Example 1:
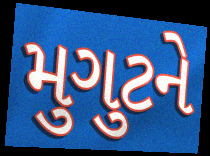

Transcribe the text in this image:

મુગુટને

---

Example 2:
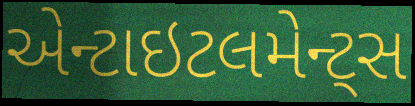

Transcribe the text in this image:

એન્ટાઇટલમેન્ટ્સ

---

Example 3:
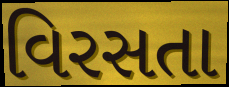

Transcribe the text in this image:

વિરસતા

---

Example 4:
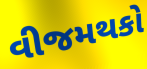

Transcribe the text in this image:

વીજમથકો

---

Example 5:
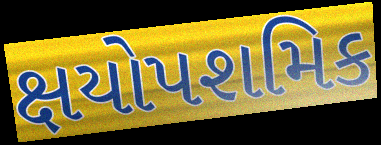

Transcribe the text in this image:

ક્ષયોપશમિક